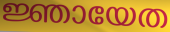
ജ്ഞായേത